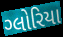
ગ્લોરિયા